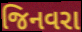
જિનવરા